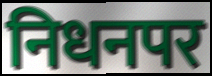
निधनपर